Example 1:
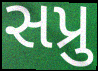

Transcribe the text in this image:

સપ્રુ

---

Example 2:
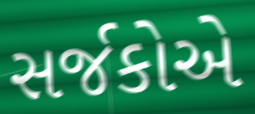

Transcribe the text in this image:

સર્જકોએ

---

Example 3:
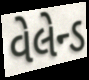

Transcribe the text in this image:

વેલેન્ડ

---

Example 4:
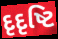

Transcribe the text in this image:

દૃદૃષ્ટિ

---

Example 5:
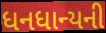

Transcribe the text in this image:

ધનધાન્યની